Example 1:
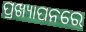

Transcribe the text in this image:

ପ୍ରଖ୍ୟାପନରେ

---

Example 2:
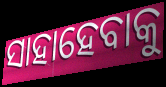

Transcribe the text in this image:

ସାହାହେବାକୁ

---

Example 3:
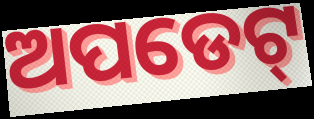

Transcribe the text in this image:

ଅପଡେଟ୍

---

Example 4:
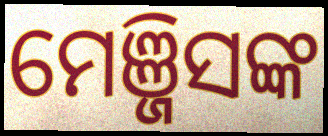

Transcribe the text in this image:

ମେଞ୍ଜିସଙ୍କ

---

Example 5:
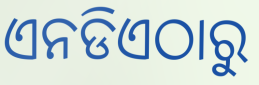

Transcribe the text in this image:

ଏନଡିଏଠାରୁ